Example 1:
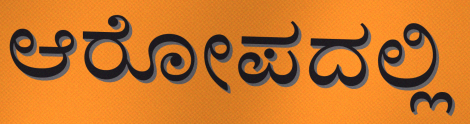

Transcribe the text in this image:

ಆರೋಪದಲ್ಲಿ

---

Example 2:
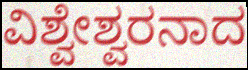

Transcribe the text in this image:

ವಿಶ್ವೇಶ್ವರನಾದ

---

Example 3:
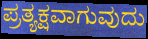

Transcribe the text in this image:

ಪ್ರತ್ಯಕ್ಷವಾಗುವುದು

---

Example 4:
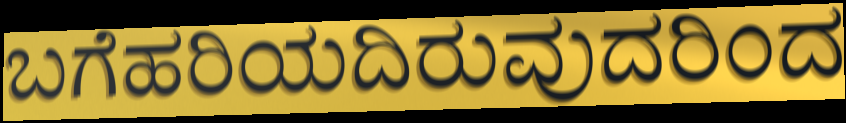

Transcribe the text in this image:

ಬಗೆಹರಿಯದಿರುವುದರಿಂದ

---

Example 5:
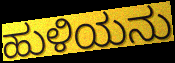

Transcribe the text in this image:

ಹುಳಿಯನು